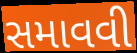
સમાવવી